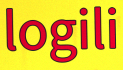
logili